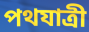
পথযাত্রী